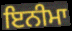
ਇਨੀਮਾ